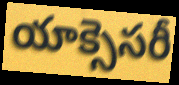
యాక్సెసరీ